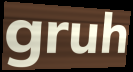
gruh